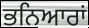
ਭਨਿਆਰਾਂ